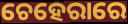
ଚେହେରାରେ